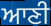
ਆਣੀ